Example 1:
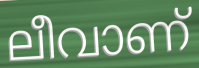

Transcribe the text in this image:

ലീവാണ്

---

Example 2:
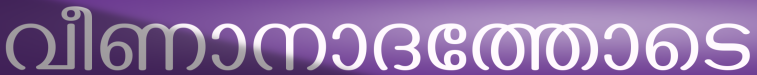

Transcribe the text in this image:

വീണാനാദത്തോടെ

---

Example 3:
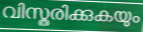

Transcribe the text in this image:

വിസ്തരിക്കുകയും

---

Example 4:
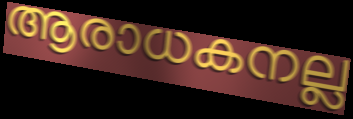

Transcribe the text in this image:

ആരാധകനല്ല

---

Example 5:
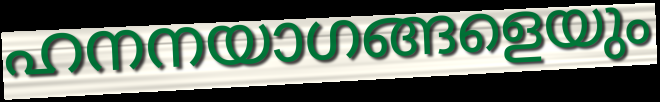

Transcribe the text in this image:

ഹനനയാഗങ്ങളെയും